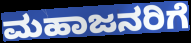
ಮಹಾಜನರಿಗೆ